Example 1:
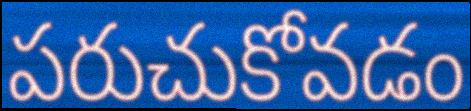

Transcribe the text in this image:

పరుచుకోవడం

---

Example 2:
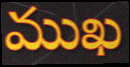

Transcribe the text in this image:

ముఖ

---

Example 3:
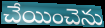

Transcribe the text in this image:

చేయించెను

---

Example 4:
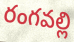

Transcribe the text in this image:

రంగవల్లి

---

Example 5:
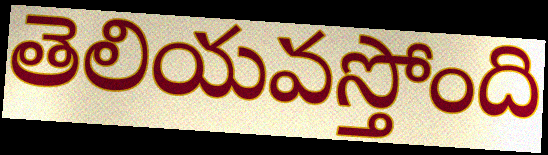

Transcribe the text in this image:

తెలియవస్తోంది